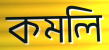
কমলি